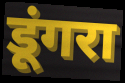
डूंगरा